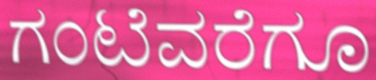
ಗಂಟೆವರೆಗೂ